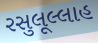
રસુલૂલ્લાહ